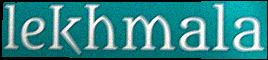
lekhmala